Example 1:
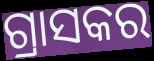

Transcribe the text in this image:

ଗ୍ରାସକର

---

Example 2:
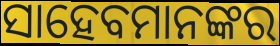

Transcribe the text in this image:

ସାହେବମାନଙ୍କର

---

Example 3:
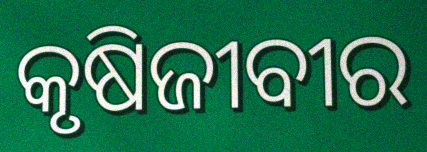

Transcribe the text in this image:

କୃଷିଜୀବୀର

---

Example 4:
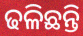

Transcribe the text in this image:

ଢଳିଛନ୍ତି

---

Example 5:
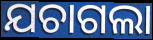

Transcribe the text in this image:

ଯଚାଗଲା